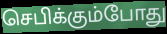
செபிக்கும்போது